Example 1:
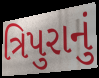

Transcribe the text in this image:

ત્રિપુરાનું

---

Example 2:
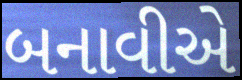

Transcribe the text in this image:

બનાવીએ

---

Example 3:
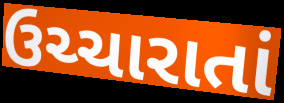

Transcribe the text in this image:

ઉચ્ચારાતાં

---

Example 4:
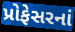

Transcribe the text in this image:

પ્રોફેસરનાં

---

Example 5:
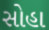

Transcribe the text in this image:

સોહા